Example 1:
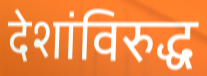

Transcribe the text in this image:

देशांविरुद्ध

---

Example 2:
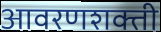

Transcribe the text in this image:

आवरणशक्ती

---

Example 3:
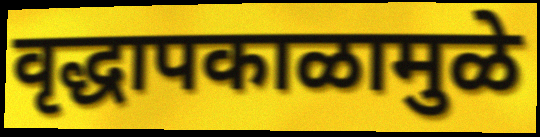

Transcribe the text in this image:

वृद्धापकाळामुळे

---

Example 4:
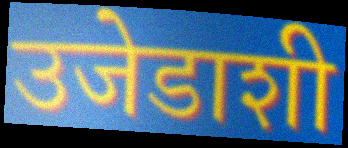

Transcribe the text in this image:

उजेडाशी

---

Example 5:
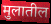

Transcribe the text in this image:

मुलातील